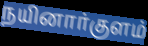
நயினார்குளம்